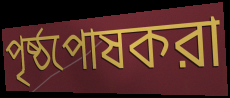
পৃষ্ঠপোষকরা